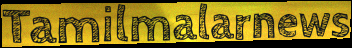
Tamilmalarnews